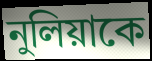
নুলিয়াকে